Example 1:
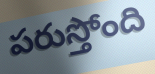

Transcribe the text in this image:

పరుస్తోంది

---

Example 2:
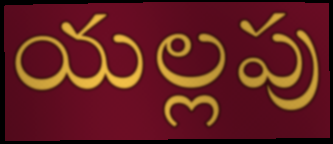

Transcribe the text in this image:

యల్లపు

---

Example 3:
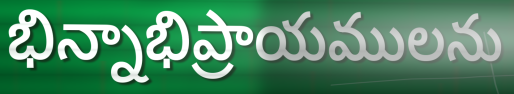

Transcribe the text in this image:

భిన్నాభిప్రాయములను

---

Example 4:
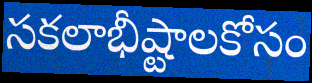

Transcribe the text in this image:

సకలాభీష్టాలకోసం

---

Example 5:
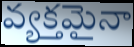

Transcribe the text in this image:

వ్యక్తమైనా